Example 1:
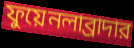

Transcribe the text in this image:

ফুয়েনলাব্রাদার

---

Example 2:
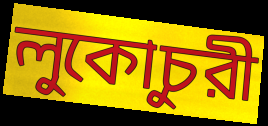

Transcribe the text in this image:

লুকোচুরী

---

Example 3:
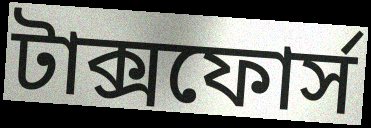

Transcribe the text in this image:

টাক্সফোর্স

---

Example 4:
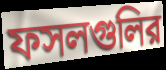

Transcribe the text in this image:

ফসলগুলির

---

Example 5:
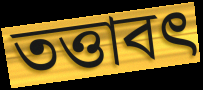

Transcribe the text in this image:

তত্তাবৎ